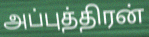
அப்புத்திரன்